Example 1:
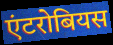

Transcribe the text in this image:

एंटरोबियस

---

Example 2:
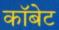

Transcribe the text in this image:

कॉबेट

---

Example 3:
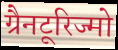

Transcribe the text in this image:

ग्रैनटूरिज्मो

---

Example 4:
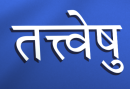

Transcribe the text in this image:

तत्त्वेषु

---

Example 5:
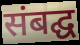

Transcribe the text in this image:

संबद्घ